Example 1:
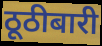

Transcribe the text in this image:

ठूठीबारी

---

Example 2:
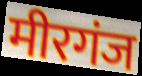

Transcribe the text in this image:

मीरगंज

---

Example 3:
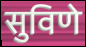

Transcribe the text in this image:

सुविणे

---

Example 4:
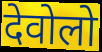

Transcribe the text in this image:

देवोलो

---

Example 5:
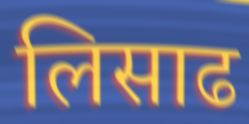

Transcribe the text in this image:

लिसाढ